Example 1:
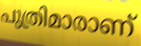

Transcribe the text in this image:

പുത്രിമാരാണ്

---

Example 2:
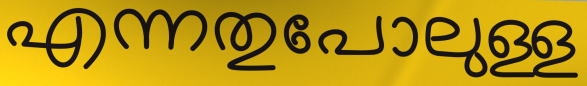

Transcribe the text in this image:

എന്നതുപോലുള്ള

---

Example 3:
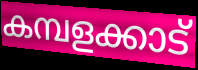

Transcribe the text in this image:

കമ്പളക്കാട്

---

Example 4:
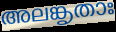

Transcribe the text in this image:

അലങ്കൃതാഃ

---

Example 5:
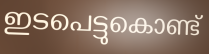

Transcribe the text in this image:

ഇടപെട്ടുകൊണ്ട്